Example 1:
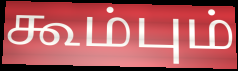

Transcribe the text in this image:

கூம்பும்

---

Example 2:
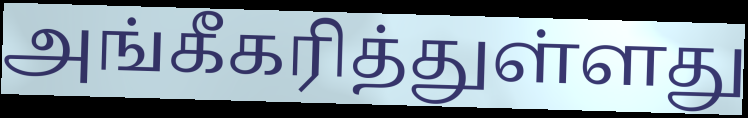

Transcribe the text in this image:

அங்கீகரித்துள்ளது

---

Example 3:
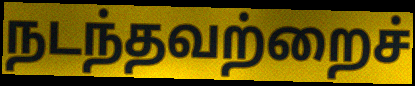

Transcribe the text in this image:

நடந்தவற்றைச்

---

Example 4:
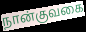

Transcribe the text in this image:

நான்குவகை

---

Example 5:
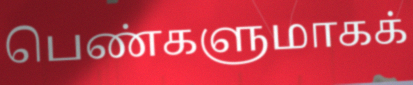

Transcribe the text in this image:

பெண்களுமாகக்